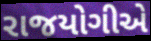
રાજયોગીએ